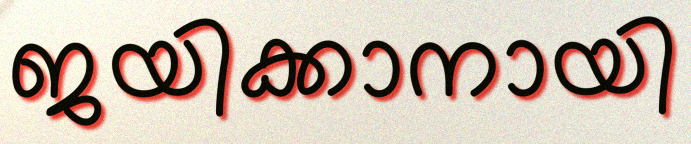
ജയിക്കാനായി